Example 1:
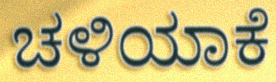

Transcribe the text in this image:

ಚಳಿಯಾಕೆ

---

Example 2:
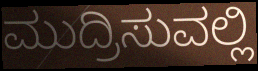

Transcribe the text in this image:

ಮುದ್ರಿಸುವಲ್ಲಿ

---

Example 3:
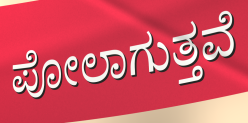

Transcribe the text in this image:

ಪೋಲಾಗುತ್ತವೆ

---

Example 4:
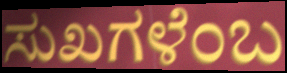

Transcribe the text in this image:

ಸುಖಗಳೆಂಬ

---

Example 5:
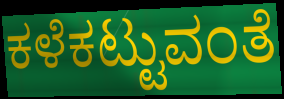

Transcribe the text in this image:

ಕಳೆಕಟ್ಟುವಂತೆ